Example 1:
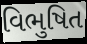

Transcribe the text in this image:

વિભુષિત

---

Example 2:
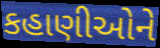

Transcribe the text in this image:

કહાણીઓને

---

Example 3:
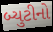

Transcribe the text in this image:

બ્યુટીનો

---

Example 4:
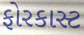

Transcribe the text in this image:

ફોરકાસ્ટ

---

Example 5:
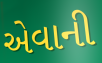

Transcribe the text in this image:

એવાની